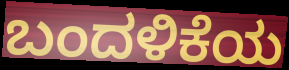
ಬಂದಳಿಕೆಯ